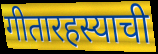
गीतारहस्याची